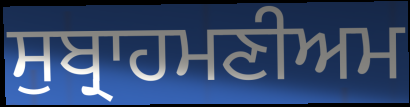
ਸੁਬ੍ਰਾਹਮਣੀਅਮ